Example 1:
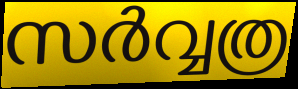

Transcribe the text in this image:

സർവ്വത്ര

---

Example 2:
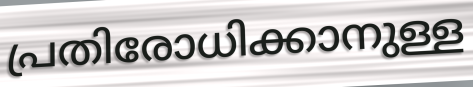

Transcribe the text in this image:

പ്രതിരോധിക്കാനുള്ള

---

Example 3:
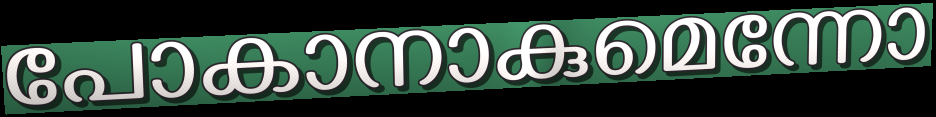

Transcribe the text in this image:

പോകാനാകുമെന്നോ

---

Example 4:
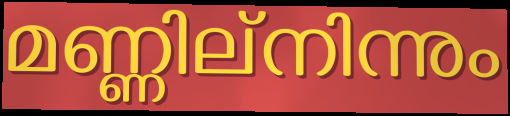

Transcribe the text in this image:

മണ്ണില്നിന്നും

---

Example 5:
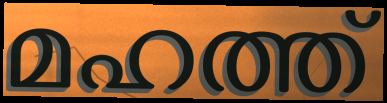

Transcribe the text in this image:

മഹത്ത്